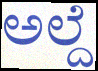
ಅಲ್ದೆ